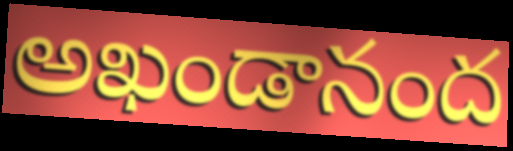
అఖండానంద